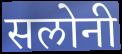
सलोनी